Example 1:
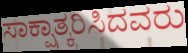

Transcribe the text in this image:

ಸಾಕ್ಷಾತ್ಕರಿಸಿದವರು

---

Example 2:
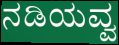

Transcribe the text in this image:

ನಡಿಯವ್ವ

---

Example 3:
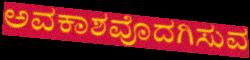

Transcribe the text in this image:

ಅವಕಾಶವೊದಗಿಸುವ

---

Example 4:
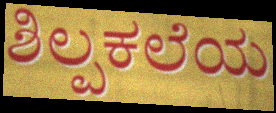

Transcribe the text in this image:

ಶಿಲ್ಪಕಲೆಯ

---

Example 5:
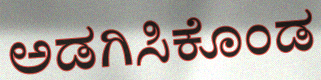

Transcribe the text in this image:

ಅಡಗಿಸಿಕೊಂಡ